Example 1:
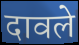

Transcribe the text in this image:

दावले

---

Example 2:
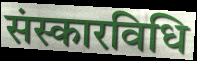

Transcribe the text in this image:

संस्कारविधि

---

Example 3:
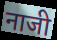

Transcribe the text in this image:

नाजी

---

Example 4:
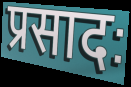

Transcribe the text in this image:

प्रसादः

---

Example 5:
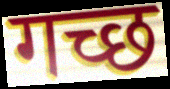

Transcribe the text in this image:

गच्छ